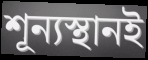
শূন্যস্থানই